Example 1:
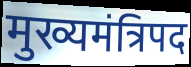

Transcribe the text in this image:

मुख्यमंत्रिपद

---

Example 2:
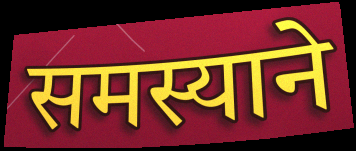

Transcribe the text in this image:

समस्याने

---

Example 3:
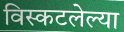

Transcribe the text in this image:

विस्कटलेल्या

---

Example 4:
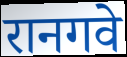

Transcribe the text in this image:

रानगवे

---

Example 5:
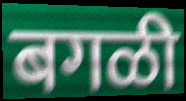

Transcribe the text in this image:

बगळी